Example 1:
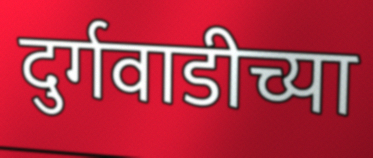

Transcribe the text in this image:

दुर्गवाडीच्या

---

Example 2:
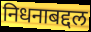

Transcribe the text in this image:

निधनाबद्दल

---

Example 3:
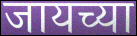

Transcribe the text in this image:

जायच्या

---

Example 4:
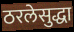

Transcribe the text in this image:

ठरलेसुद्धा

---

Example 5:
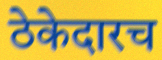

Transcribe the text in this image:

ठेकेदारच